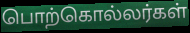
பொற்கொல்லர்கள்